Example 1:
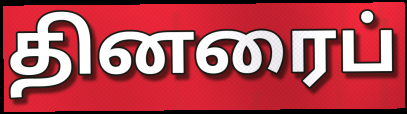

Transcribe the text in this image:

தினரைப்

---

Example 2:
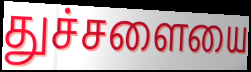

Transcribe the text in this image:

துச்சளையை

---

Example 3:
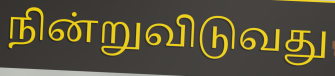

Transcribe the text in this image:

நின்றுவிடுவது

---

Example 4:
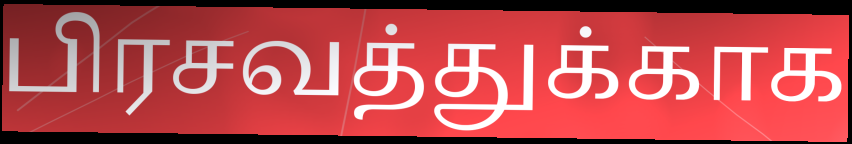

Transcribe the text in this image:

பிரசவத்துக்காக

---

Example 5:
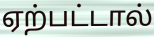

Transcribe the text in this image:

ஏற்பட்டால்